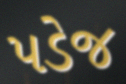
પડેજ